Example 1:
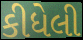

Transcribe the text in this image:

કીધેલી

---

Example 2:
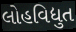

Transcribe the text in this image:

લોહવિદ્યુત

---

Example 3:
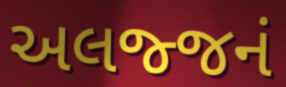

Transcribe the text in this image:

અલજ્જનં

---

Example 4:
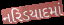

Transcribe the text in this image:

નરિડયાદમાં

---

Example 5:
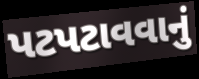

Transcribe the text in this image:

પટપટાવવાનું